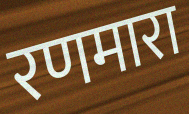
रणमारा